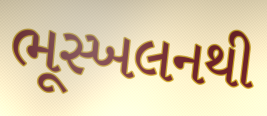
ભૂસ્ખલનથી